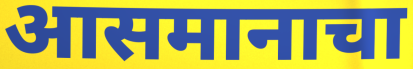
आसमानाचा